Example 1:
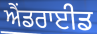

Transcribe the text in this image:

ਐਂਡਰਾਈਡ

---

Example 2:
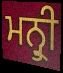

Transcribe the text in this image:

ਮਨ੍ਤ੍ਰੀ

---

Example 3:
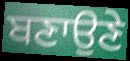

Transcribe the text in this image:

ਬਣਾਉਣੇ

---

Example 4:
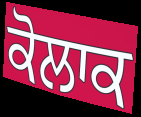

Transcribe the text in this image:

ਕੋਲਾਕ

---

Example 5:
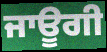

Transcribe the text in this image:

ਜਾਊਗੀ